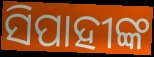
ସିପାହୀଙ୍କ